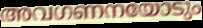
അവഗണനയോടും